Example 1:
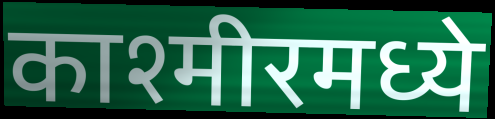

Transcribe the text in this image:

काश्मीरमध्ये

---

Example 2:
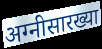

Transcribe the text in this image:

अग्नीसारख्या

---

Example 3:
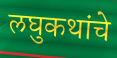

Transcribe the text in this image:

लघुकथांचे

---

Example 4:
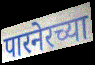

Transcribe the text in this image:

पारनेरच्या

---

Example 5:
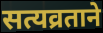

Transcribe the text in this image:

सत्यव्रताने